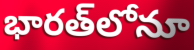
భారత్‌లోనూ